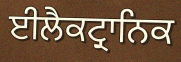
ਈਲੈਕਟ੍ਰਾਨਿਕ